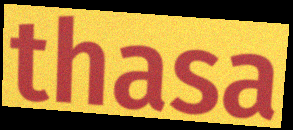
thasa